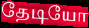
தேடியோ